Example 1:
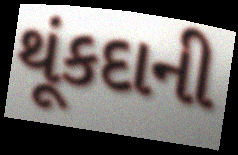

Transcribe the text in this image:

થૂંકદાની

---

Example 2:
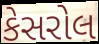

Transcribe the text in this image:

કેસરોલ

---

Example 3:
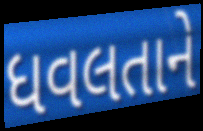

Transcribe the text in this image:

ધવલતાને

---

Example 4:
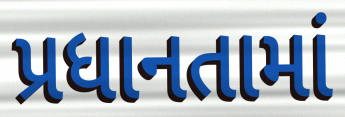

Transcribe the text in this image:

પ્રધાનતામાં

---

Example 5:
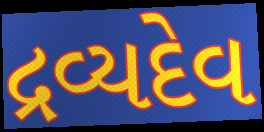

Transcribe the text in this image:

દ્રવ્યદેવ